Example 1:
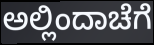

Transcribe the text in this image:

ಅಲ್ಲಿಂದಾಚೆಗೆ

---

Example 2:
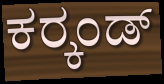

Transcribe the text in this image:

ಕರ್‍ಕಂಡ್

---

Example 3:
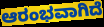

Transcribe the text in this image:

ಆರಂಭವಾಗಿದೆ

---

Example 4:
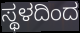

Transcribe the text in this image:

ಸ್ಥಳದಿಂದ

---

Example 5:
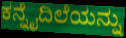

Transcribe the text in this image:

ಕನ್ನೈದಿಲೆಯನ್ನು